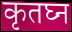
कृतघ्न